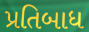
પ્રતિબાધ